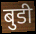
बुडी